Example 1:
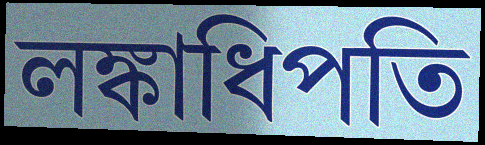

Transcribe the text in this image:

লঙ্কাধিপতি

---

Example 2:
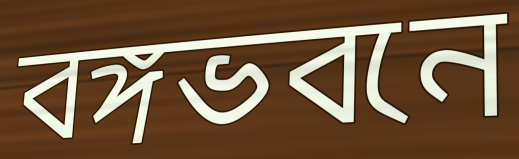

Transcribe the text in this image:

বঙ্গভবনে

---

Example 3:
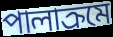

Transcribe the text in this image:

পালাক্রমে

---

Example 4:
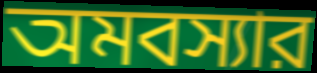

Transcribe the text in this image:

অমবস্যার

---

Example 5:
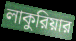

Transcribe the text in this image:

লাকুরিয়ার